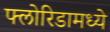
फ्लोरिडामध्ये